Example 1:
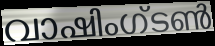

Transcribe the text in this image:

വാഷിംഗ്ടൺ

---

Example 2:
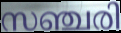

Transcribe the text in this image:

സഞ്ചരി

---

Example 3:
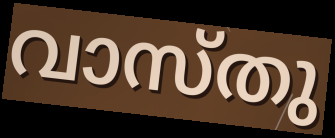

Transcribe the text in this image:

വാസ്തു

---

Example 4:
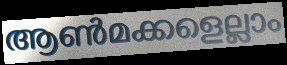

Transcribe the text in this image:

ആൺമക്കളെല്ലാം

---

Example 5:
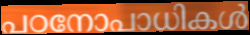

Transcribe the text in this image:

പഠനോപാധികൾ